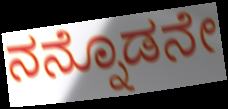
ನನ್ನೊಡನೇ